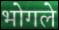
भोगले